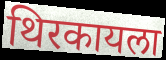
थिरकायला